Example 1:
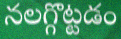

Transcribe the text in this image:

నలగ్గొట్టడం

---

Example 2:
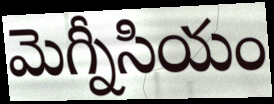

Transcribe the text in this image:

మెగ్నీసియం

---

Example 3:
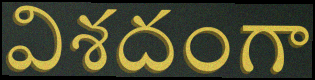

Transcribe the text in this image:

విశదంగా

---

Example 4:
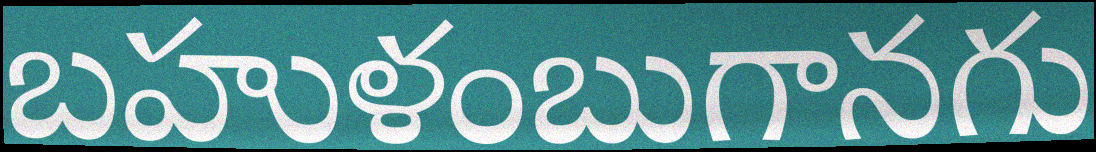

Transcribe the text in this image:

బహుళంబుగానగు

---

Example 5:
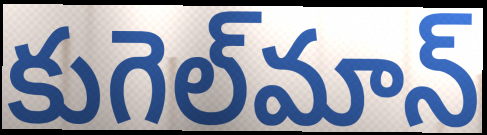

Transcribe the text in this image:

కుగెల్‌మాన్